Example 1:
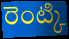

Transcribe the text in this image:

రెంట్కి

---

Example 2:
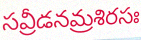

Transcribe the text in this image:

సవ్రీడనమ్రశిరసః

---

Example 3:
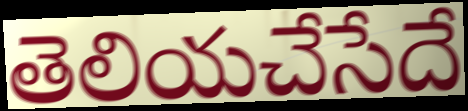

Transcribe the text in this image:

తెలియచేసేదే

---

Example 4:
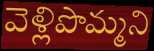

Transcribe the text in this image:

వెళ్లిపొమ్మని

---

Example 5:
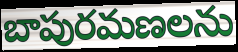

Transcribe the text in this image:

బాపురమణలను